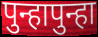
पुन्हापुन्हा